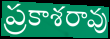
ప్రకాశరావు